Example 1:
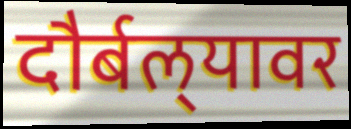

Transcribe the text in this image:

दौर्बल्यावर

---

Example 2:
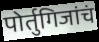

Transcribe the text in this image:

पोर्तुगिजांचं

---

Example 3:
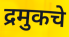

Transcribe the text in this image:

द्रमुकचे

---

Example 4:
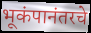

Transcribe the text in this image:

भूकंपानंतरचे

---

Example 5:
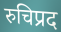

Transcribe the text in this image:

रुचिप्रद